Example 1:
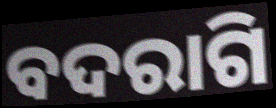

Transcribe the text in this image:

ବଦରାଗି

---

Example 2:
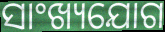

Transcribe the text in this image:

ସାଂଖ୍ୟଯୋଗ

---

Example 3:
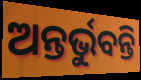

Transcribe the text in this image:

ଅନ୍ତର୍ଭୁବନ୍ତି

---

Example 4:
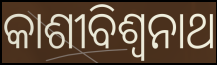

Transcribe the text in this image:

କାଶୀବିଶ୍ଵନାଥ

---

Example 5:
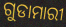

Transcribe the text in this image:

ଗୁଡାମାରୀ